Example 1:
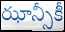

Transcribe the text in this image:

ఝాన్సీకీ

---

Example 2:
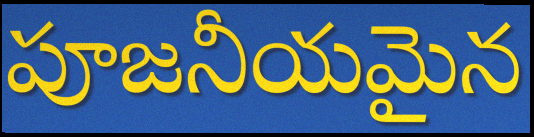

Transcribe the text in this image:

పూజనీయమైన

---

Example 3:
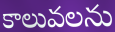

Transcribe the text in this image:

కాలువలను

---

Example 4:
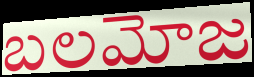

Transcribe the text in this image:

బలమోజ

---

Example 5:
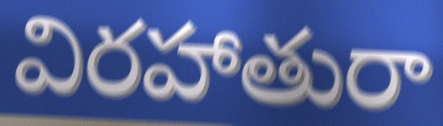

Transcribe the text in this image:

విరహాతురా